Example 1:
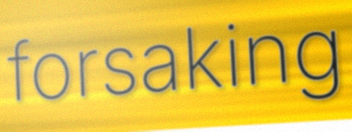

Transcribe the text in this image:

forsaking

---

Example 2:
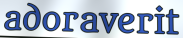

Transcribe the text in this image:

adoraverit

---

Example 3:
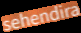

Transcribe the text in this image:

sehendira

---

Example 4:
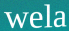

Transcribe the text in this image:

wela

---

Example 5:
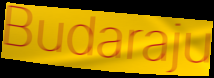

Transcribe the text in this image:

Budaraju